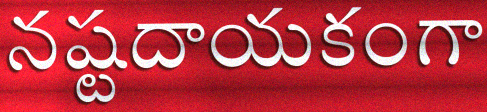
నష్టదాయకంగా